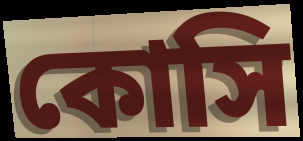
কোসি